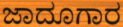
ಜಾದೂಗಾರ